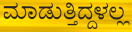
ಮಾಡುತ್ತಿದ್ದಳಲ್ಲ